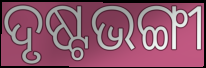
ଦୃଷ୍ଟଭଙ୍ଗୀ